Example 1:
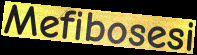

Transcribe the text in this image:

Mefibosesi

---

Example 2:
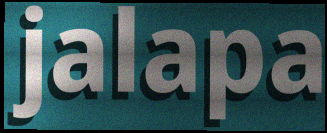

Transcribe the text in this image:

jalapa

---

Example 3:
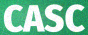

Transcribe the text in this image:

CASC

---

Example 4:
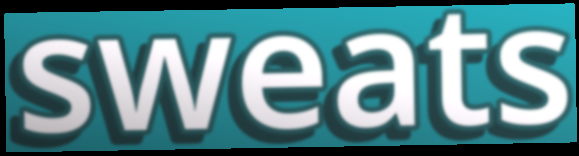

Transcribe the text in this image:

sweats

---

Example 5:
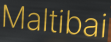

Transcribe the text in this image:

Maltibai